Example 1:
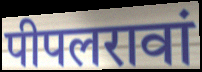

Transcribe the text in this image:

पीपलरावां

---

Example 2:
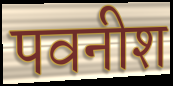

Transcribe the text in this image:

पवनीश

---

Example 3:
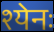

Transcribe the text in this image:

श्येनः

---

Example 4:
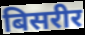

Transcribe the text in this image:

बिसरीर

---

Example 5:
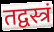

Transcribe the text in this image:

तद्वस्त्रं